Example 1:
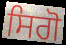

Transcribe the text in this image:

ਸਿਗੋ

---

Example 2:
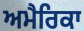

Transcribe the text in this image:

ਅਮੈਰਿਕਾ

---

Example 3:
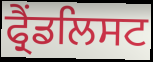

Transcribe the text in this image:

ਫ੍ਰੈਂਡਲਿਸਟ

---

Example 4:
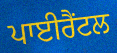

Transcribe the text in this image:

ਪਾਈਰੈਂਟਲ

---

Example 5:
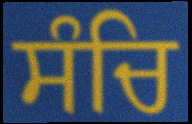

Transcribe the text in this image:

ਸੰਚਿ